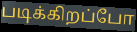
படிக்கிறப்போ